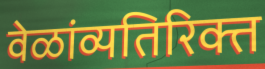
वेळांव्यतिरिक्त